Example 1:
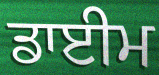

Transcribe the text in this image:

ਡਾਈਮ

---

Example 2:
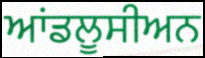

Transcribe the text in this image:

ਆਂਡਲੂਸੀਅਨ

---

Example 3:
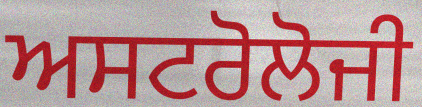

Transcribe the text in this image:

ਅਸਟਰੋਲੋਜੀ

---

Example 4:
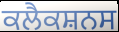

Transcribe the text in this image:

ਕਲੈਕਸ਼ਨਸ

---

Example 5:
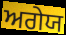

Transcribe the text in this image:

ਅਗੇਯ